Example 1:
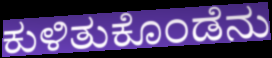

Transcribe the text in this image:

ಕುಳಿತುಕೊಂಡೆನು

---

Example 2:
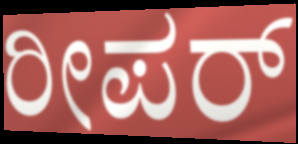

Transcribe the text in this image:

ರೀಪರ್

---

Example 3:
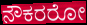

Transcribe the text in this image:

ನೌಕರರೋ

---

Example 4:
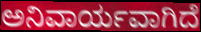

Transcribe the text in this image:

ಅನಿವಾರ್ಯವಾಗಿದೆ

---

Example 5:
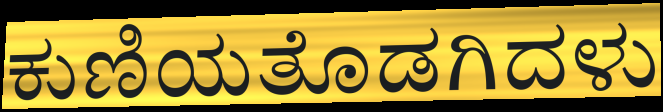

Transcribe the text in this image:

ಕುಣಿಯತೊಡಗಿದಳು